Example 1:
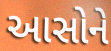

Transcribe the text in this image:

આસોને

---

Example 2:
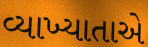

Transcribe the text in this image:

વ્યાખ્યાતાએ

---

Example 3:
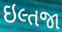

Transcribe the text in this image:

ઇલ્તજા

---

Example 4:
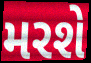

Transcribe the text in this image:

મરશે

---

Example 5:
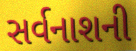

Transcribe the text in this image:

સર્વનાશની